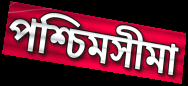
পশ্চিমসীমা